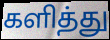
களித்து